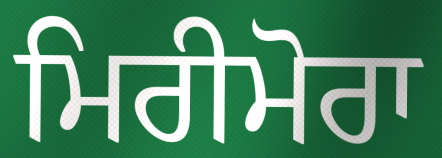
ਮਿਰੀਮੋਰਾ